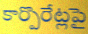
కార్పొరేట్లపై